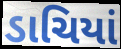
ડાચિયાં